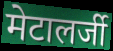
मेटालर्जी